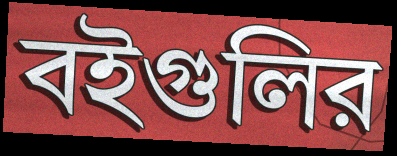
বইগুলির